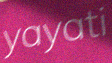
yayati